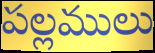
పల్లములు